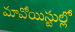
మావోయిస్టుల్లో